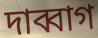
দাব্বাগ